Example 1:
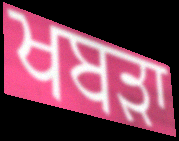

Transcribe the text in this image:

ਖਬੜਾ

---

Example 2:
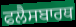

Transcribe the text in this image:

ਫਲੈਸਬਾਰਥ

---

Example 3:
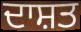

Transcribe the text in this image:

ਦਾਸ਼ਤ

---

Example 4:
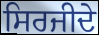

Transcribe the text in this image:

ਸਿਰਜੀਦੇ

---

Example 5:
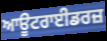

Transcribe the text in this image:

ਆਊਟਰਾਈਡਰਜ਼